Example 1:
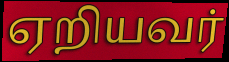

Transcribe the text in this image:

ஏறியவர்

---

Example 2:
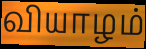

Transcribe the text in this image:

வியாழம்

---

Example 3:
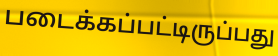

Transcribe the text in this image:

படைக்கப்பட்டிருப்பது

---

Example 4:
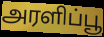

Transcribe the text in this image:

அரளிப்பூ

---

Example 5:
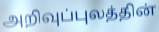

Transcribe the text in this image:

அறிவுப்புலத்தின்